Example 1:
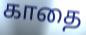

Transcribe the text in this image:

காதை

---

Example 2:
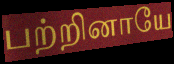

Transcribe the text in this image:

பற்றினாயே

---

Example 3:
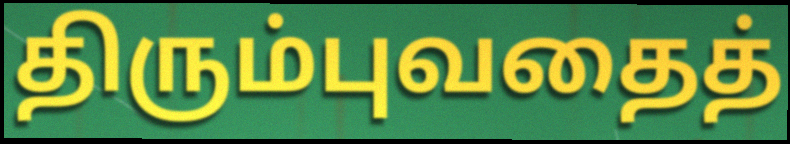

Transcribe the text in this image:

திரும்புவதைத்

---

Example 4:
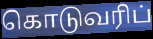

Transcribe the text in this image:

கொடுவரிப்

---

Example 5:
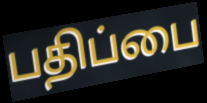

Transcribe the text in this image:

பதிப்பை